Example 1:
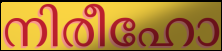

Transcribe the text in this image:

നിരീഹോ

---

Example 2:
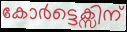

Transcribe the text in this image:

കോർട്ടെക്സിന്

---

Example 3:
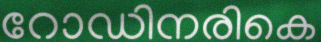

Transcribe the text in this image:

റോഡിനരികെ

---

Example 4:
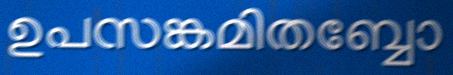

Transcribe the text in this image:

ഉപസങ്കമിതബ്ബോ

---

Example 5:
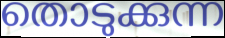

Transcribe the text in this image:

തൊടുക്കുന്ന